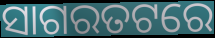
ସାଗରତଟରେ